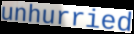
unhurried